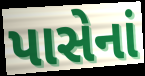
પાસેનાં